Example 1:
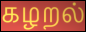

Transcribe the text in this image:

கழறல்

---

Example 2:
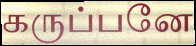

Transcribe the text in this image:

கருப்பனே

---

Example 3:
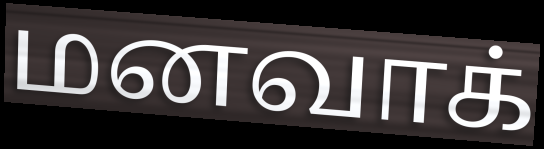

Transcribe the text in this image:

மனவாக்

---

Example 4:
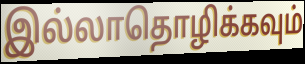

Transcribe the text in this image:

இல்லாதொழிக்கவும்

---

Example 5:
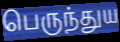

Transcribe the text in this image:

பெருந்துய